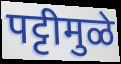
पट्टीमुळे